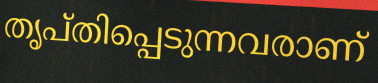
തൃപ്തിപ്പെടുന്നവരാണ്